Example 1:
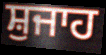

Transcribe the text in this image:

ਸ਼ੁਜਾਹ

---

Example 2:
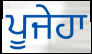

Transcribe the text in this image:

ਪੂਜੇਹਾ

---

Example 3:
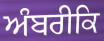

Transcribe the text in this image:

ਅੰਬਰੀਕਿ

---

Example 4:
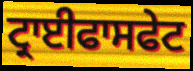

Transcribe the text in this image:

ਟ੍ਰਾਈਫਾਸਫੇਟ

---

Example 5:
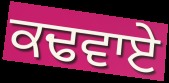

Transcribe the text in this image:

ਕਢਵਾਏ